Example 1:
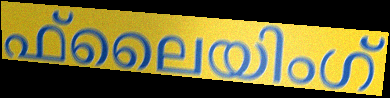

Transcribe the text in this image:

ഫ്‌ലൈയിംഗ്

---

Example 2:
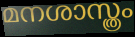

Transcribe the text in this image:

മനശാസ്ത്രം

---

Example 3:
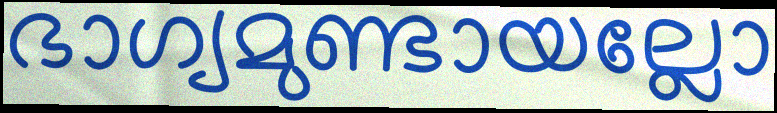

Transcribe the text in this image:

ഭാഗ്യമുണ്ടായല്ലോ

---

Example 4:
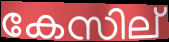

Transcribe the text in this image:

കേസില്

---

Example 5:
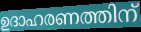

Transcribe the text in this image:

ഉദാഹരണത്തിന്